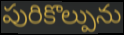
పురికొల్పును